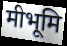
मीभूमि